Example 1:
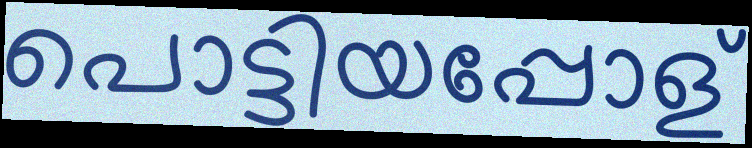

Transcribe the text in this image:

പൊട്ടിയപ്പോള്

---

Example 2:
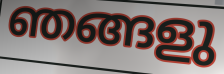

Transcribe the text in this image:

ഞങ്ങളു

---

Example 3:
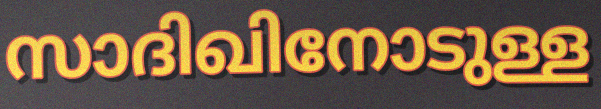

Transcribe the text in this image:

സാദിഖിനോടുള്ള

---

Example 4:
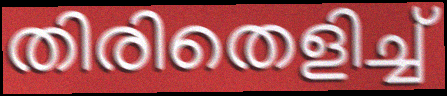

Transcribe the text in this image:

തിരിതെളിച്ച്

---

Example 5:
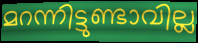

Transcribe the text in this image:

മറന്നിട്ടുണ്ടാവില്ല